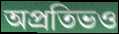
অপ্রতিভও